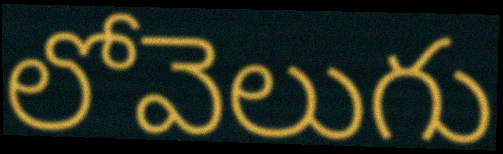
లోవెలుగు